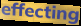
effecting